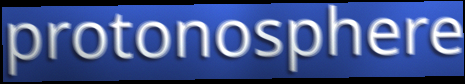
protonosphere